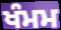
ਖੰਮਮ